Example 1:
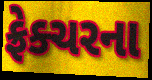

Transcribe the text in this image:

ફ્રેક્ચરના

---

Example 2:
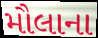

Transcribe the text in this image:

મૌલાના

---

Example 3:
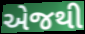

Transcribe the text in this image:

એજથી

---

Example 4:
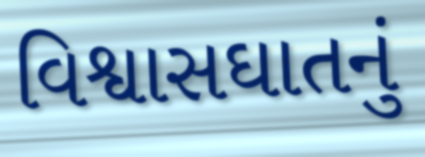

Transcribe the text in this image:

વિશ્વાસઘાતનું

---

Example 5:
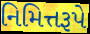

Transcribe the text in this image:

નિમિત્તરૂપે